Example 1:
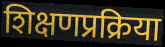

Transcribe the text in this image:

शिक्षणप्रक्रिया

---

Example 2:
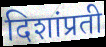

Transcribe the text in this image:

दिशांप्रती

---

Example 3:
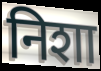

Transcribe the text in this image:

निशा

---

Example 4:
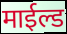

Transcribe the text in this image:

माईल्ड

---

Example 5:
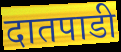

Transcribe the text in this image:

दातपाडी